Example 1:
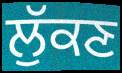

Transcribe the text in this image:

ਲੁੱਕਣ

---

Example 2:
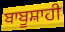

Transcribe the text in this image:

ਬਾਬੂਸ਼ਾਹੀ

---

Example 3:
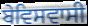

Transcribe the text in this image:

ਬੇਵਿਸਵਾਸੀ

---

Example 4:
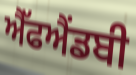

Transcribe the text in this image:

ਐੱਫਐਂਡਬੀ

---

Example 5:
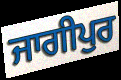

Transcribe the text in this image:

ਜਾਗੀਪੁਰ